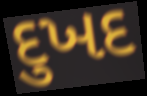
દુખદ